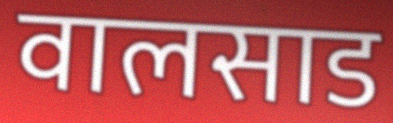
वालसाड